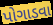
પોગાડવા